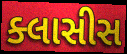
ક્લાસીસ